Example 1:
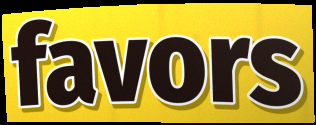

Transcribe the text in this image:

favors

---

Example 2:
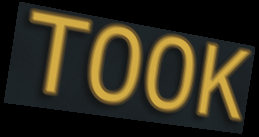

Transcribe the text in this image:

TOOK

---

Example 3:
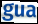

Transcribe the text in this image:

gua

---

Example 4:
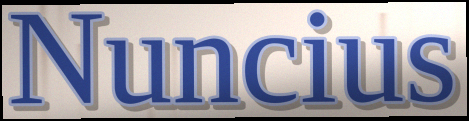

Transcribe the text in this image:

Nuncius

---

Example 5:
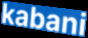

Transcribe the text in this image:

kabani